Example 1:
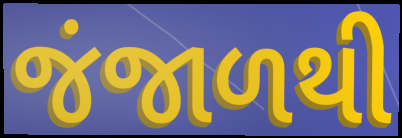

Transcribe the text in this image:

જંજાળથી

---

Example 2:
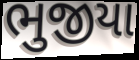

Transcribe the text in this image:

ભુજીયા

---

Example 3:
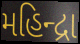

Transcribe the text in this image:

મહિન્દ્રા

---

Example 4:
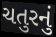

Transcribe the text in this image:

ચતુરનું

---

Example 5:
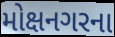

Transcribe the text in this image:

મોક્ષનગરના